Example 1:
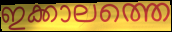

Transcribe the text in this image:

ഇക്കാലത്തെ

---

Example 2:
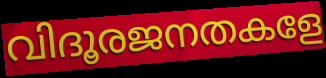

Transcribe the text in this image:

വിദൂരജനതകളേ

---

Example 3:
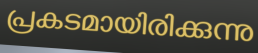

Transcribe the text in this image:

പ്രകടമായിരിക്കുന്നു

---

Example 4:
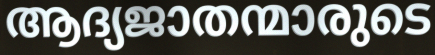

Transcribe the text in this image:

ആദ്യജാതന്മാരുടെ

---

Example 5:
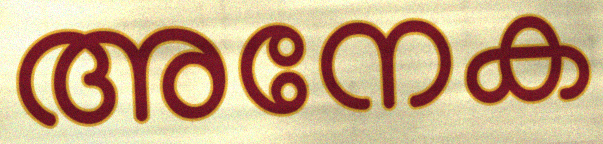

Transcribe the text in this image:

അനേക